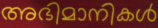
അഭിമാനികൾ